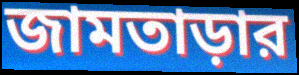
জামতাড়ার